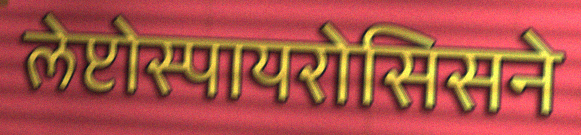
लेप्टोस्पायरोसिसने